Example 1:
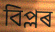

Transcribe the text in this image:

বিপ্লৰ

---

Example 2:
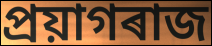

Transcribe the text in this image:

প্ৰয়াগৰাজ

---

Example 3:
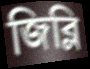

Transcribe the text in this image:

জিব্লি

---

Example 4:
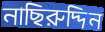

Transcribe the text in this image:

নাছিৰুদ্দিন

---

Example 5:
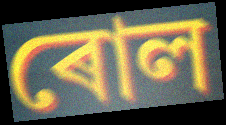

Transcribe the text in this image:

ৰোল